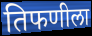
तिफणीला